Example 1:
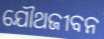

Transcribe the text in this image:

ଯୌଥଜୀବନ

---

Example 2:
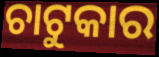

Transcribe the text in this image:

ଚାଟୁକାର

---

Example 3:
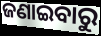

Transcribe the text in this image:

ଜଣାଇବାରୁ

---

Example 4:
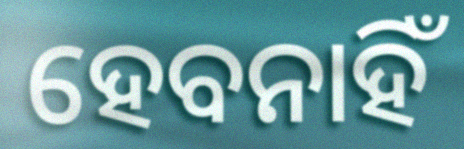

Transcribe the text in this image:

ହେବନାହିଁ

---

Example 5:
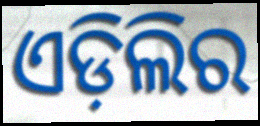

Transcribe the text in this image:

ଏଡ଼ିଲିର